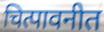
चित्पावनीत